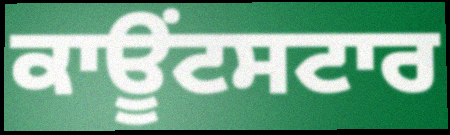
ਕਾਊਂਟਸਟਾਰ